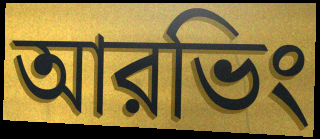
আরভিং